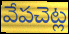
వేపచెట్ల